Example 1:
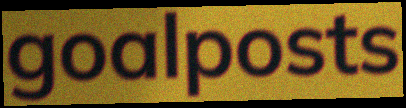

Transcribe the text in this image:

goalposts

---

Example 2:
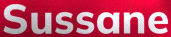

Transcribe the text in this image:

Sussane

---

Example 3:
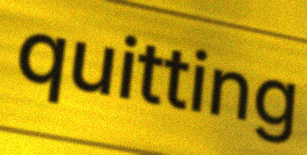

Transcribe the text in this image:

quitting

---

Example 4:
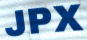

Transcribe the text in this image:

JPX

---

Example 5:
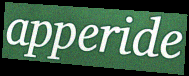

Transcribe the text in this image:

apperide